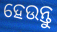
ହେଉନ୍ତୁ